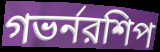
গভর্নরশিপ